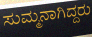
ಸುಮ್ಮನಾಗಿದ್ದರು